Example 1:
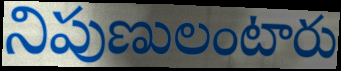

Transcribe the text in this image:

నిపుణులంటారు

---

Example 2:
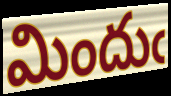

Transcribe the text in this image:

మిందుఁ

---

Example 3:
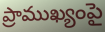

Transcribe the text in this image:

ప్రాముఖ్యంపై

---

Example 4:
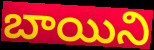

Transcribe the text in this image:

బాయిని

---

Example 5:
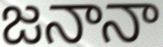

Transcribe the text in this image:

జనానా